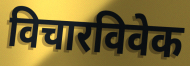
विचारविवेक